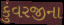
કુંવરજીના